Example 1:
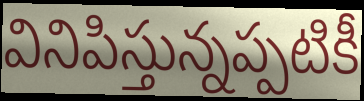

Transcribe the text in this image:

వినిపిస్తున్నప్పటికీ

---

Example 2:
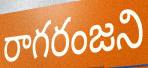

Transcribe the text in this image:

రాగరంజని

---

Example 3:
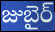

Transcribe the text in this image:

జుబైర్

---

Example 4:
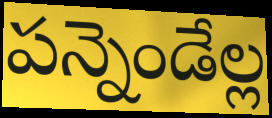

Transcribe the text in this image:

పన్నెండేల్ల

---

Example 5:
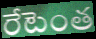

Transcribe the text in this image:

రేటెంత